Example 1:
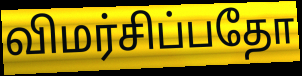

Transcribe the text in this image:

விமர்சிப்பதோ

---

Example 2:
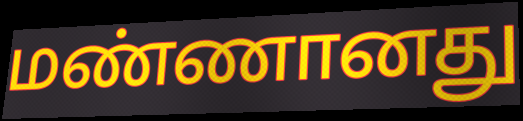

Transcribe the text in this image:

மண்ணானது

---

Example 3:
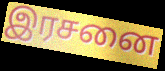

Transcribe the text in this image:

இரசனை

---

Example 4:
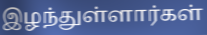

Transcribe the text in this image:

இழந்துள்ளார்கள்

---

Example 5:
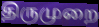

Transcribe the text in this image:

திருமுறை